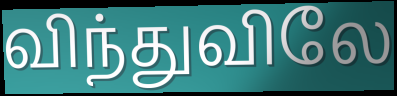
விந்துவிலே